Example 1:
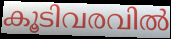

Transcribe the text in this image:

കൂടിവരവിൽ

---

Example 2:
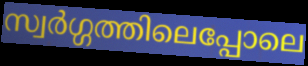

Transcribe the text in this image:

സ്വർഗ്ഗത്തിലെപ്പോലെ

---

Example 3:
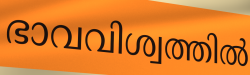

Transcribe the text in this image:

ഭാവവിശ്വത്തിൽ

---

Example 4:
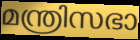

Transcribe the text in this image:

മന്ത്രിസഭാ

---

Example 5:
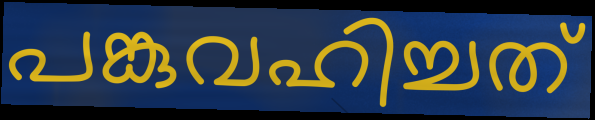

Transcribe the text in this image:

പങ്കുവഹിച്ചത്